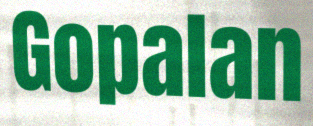
Gopalan